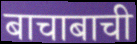
बाचाबाची